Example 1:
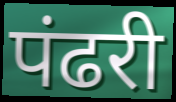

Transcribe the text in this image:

पंढरी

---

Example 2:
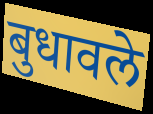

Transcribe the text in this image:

बुधावले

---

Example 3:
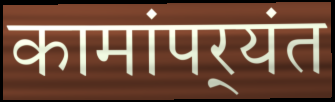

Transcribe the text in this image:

कामांपर्यंत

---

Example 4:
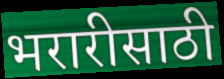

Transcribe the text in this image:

भरारीसाठी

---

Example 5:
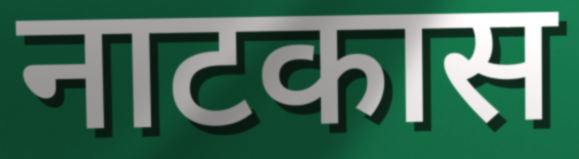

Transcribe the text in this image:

नाटकास